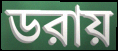
ডরায়